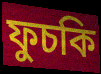
ফুচকি